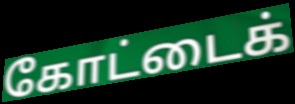
கோட்டைக்